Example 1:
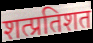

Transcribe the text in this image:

शत्प्रतिशत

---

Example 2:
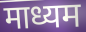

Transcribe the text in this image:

माध्यम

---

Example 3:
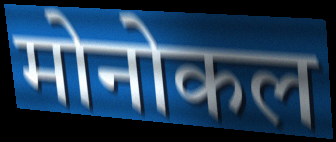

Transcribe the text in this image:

मोनोकल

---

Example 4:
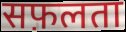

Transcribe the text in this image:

सफ़लता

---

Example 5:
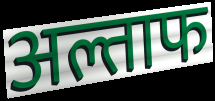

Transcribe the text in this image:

अल्ताफ